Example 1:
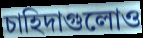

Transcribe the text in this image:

চাহিদাগুলোও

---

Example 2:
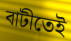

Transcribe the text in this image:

বাটীতেই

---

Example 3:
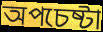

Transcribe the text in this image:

অপচেষ্টা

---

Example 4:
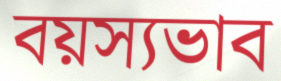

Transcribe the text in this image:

বয়স্যভাব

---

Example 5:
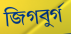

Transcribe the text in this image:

জিগবুর্গ